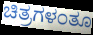
ಚಿತ್ರಗಳಂತೂ